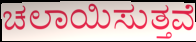
ಚಲಾಯಿಸುತ್ತವೆ